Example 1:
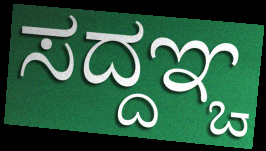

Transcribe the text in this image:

ಸದ್ದಞ್ಚ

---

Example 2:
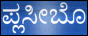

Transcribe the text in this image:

ಪ್ಲಸೀಬೊ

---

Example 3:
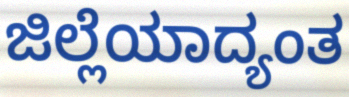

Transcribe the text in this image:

ಜಿಲ್ಲೆಯಾದ್ಯಂತ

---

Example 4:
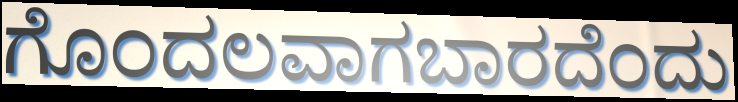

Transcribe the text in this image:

ಗೊಂದಲವಾಗಬಾರದೆಂದು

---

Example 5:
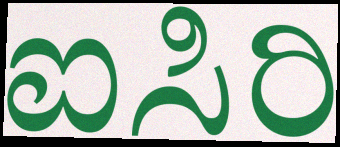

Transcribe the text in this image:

ಐಸಿರಿ